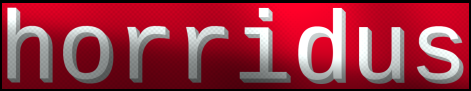
horridus